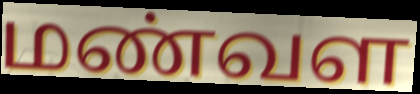
மண்வள